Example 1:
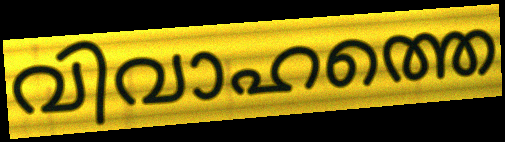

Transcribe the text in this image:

വിവാഹത്തെ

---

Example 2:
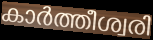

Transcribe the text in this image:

കാർത്തീശ്വരി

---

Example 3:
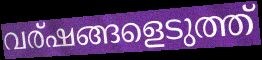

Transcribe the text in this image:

വര്ഷങ്ങളെടുത്ത്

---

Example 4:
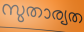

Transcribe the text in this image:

സുതാര്യത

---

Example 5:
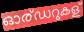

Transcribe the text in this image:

ഓര്ഡറുകള്